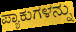
ಪ್ಯಾಕುಗಳನ್ನು